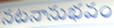
నటనానుభవం